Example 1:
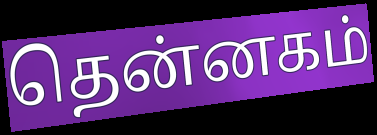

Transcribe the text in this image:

தென்னகம்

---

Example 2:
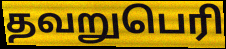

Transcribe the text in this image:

தவறுபெரி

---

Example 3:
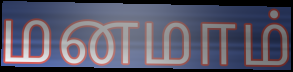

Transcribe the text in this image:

மனமாம்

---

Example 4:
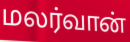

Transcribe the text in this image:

மலர்வான்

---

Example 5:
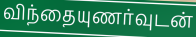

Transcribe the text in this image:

விந்தையுணர்வுடன்